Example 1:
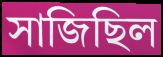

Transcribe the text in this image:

সাজিছিল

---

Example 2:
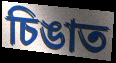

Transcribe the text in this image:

চিঙাত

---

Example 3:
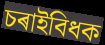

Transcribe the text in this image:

চৰাইবিধক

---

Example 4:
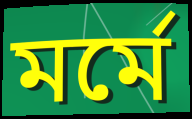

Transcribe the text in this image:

মৰ্মে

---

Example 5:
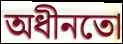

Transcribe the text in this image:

অধীনতো